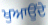
ਖੁਆਉਂਦੇ